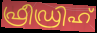
ഫ്രീഡ്രിഹ്